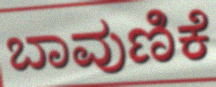
ಬಾವುಣಿಕೆ